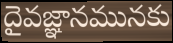
దైవజ్ఞానమునకు